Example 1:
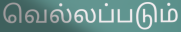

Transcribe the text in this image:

வெல்லப்படும்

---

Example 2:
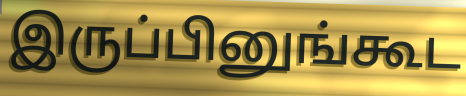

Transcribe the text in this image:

இருப்பினுங்கூட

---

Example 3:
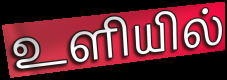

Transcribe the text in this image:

உளியில்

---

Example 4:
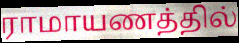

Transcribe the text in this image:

ராமாயணத்தில்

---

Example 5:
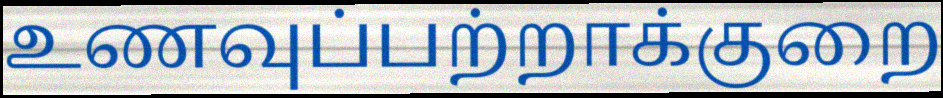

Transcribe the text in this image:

உணவுப்பற்றாக்குறை